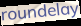
roundelay